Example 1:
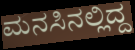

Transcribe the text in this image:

ಮನಸಿನಲ್ಲಿದ್ದ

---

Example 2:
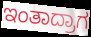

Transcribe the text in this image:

ಇಂತಾದ್ರಾಗ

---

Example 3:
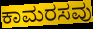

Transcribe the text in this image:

ಕಾಮರಸವು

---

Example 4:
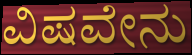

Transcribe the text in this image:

ವಿಷವೇನು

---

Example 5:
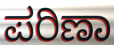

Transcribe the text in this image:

ಪರಿಣಾ